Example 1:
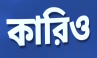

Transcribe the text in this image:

কারিও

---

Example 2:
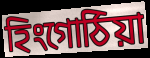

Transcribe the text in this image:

হিংগোঠিয়া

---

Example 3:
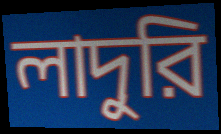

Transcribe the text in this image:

লাদুরি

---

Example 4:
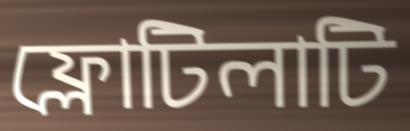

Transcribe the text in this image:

ফ্লোটিলাটি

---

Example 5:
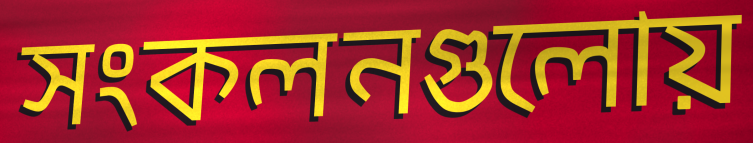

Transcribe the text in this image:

সংকলনগুলোয়